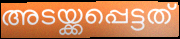
അടയ്ക്കപ്പെട്ടത്